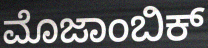
ಮೊಜಾಂಬಿಕ್